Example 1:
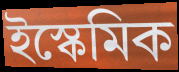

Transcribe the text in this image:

ইস্কেমিক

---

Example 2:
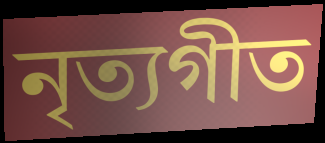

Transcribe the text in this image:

নৃত্যগীত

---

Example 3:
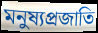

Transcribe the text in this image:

মনুষ্যপ্রজাতি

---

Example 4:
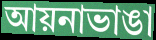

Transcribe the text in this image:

আয়নাভাঙা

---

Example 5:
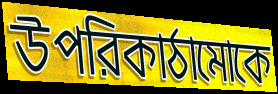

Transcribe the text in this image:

উপরিকাঠামোকে